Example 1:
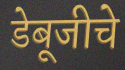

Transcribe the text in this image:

डेबूजीचे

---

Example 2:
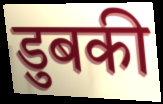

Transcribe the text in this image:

डुबकी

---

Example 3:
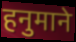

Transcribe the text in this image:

हनुमाने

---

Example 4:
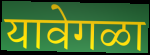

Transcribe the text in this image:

यावेगळा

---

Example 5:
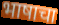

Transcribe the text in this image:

भाषाचा